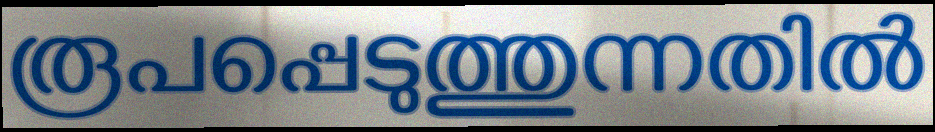
രൂപപ്പെടുത്തുന്നതിൽ